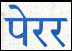
पेरर